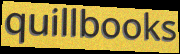
quillbooks